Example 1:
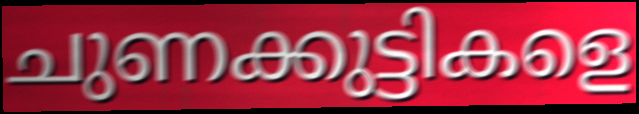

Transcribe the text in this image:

ചുണക്കുട്ടികളെ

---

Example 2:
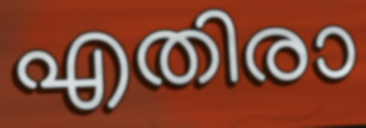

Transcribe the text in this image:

എതിരാ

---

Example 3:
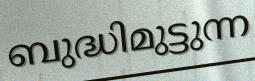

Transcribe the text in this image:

ബുദ്ധിമുട്ടുന്ന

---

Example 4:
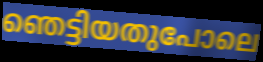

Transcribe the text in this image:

ഞെട്ടിയതുപോലെ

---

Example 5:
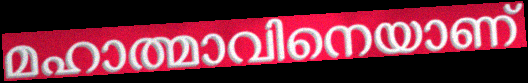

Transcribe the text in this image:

മഹാത്മാവിനെയാണ്